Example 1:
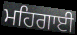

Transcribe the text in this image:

ਮਹਿਗਾਈ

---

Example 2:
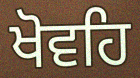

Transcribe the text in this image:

ਖੋਵਹਿ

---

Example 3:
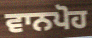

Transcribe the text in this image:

ਵਾਨਪੋਹ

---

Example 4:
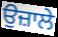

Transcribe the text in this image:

ਉਜ਼ਾਲੇ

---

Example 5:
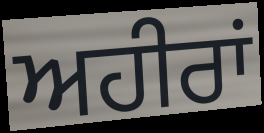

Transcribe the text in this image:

ਅਹੀਰਾਂ